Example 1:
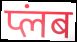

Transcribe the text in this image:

प्लंब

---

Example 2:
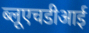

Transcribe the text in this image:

ब्लूएचडीआई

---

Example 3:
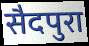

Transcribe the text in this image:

सैदपुरा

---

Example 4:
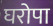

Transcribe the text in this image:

घरोपा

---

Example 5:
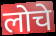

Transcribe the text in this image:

लोचे